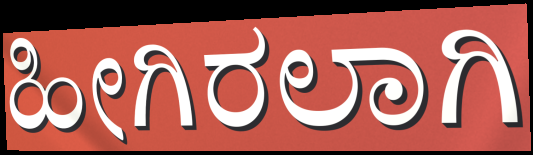
ಹೀಗಿರಲಾಗಿ